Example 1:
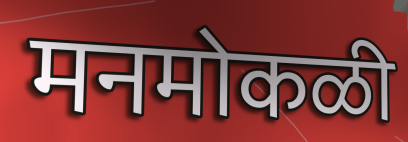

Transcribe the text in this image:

मनमोकळी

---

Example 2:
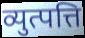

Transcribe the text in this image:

व्युत्पत्ति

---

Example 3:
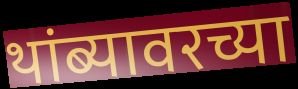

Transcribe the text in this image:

थांब्यावरच्या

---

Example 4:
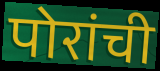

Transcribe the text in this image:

पोरांची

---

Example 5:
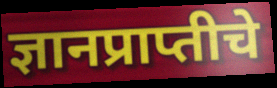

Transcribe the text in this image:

ज्ञानप्राप्तीचे